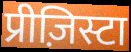
प्रीज़िस्टा